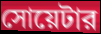
সোয়েটার